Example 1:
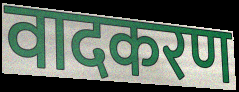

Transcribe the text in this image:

वादकरण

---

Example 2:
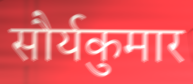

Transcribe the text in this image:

सौर्यकुमार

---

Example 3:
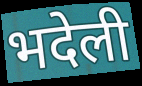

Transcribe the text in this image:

भदेली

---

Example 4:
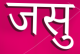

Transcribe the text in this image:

जसु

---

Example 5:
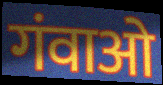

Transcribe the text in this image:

गंवाओ